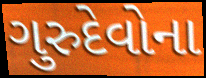
ગુરુદેવોના